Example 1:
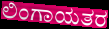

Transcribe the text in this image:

ಲಿಂಗಾಯತರ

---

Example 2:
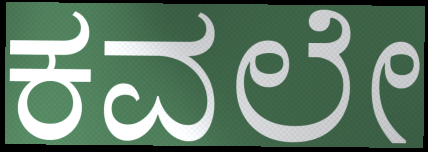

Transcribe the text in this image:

ಕವಲೇ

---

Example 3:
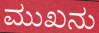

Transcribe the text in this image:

ಮುಖನು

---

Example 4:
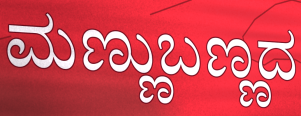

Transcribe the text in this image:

ಮಣ್ಣುಬಣ್ಣದ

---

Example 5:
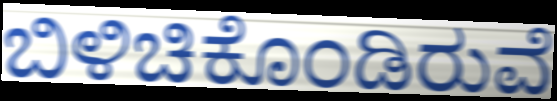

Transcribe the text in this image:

ಬಿಳಿಚಿಕೊಂಡಿರುವೆ